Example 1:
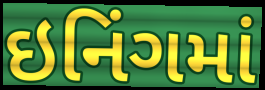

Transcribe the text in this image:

ઇનિંગમાં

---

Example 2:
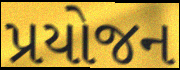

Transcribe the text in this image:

પ્રયોજન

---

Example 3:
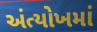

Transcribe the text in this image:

અંત્યોખમાં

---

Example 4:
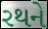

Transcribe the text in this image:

રથને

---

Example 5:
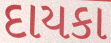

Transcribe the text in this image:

દાયકા